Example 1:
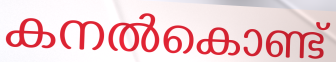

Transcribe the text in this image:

കനൽകൊണ്ട്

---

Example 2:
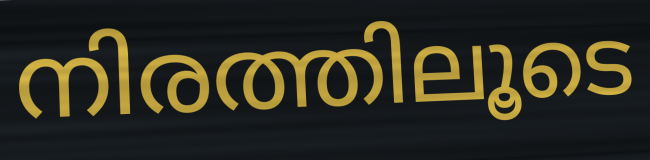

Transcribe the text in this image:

നിരത്തിലൂടെ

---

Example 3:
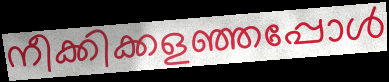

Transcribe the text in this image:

നീക്കിക്കളഞ്ഞപ്പോൾ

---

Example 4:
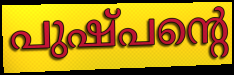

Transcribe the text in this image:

പുഷ്പന്റെ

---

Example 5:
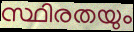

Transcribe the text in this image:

സ്ഥിരതയും